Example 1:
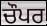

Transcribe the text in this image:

ਚੌਪਰ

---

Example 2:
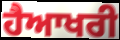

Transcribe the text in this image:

ਹੈਆਖਰੀ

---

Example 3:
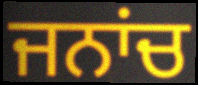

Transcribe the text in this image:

ਜਨਾਂਚ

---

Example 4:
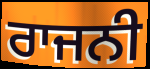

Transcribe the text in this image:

ਰਾਜਨੀ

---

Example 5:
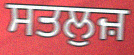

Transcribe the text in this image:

ਸਤਲੁਜ਼